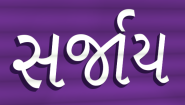
સર્જાય